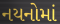
નયનોમાં